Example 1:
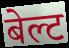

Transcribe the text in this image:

बेल्ट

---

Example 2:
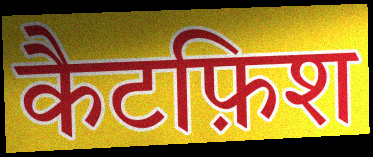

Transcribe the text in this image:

कैटफ़िश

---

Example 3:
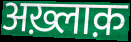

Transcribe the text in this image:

अख़्लाक़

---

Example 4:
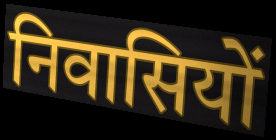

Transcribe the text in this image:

निवासियों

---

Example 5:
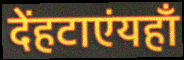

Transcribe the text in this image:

देंहटाएंयहाँ